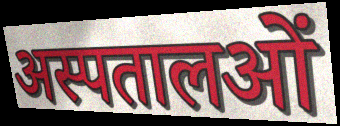
अस्पतालओं